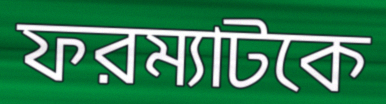
ফরম্যাটকে